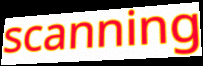
scanning